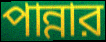
পান্নার